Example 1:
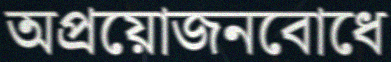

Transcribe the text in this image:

অপ্রয়োজনবোধে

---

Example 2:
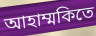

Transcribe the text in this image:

আহাম্মকিতে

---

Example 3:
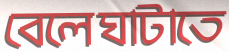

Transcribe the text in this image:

বেলেঘাটাতে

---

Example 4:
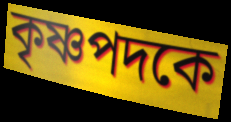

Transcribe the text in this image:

কৃষ্ণপদকে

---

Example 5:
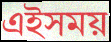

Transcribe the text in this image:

এইসময়